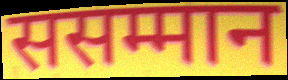
ससम्मान